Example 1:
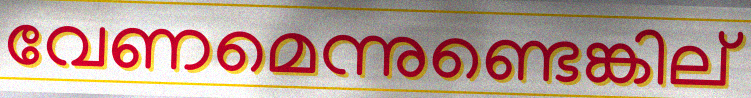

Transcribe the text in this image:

വേണമെന്നുണ്ടെങ്കില്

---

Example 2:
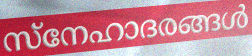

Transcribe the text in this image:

സ്നേഹാദരങ്ങൾ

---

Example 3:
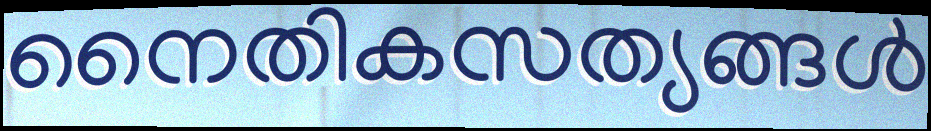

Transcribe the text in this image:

നൈതികസത്യങ്ങൾ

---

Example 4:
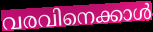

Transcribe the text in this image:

വരവിനെക്കാൾ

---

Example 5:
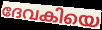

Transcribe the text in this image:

ദേവകിയെ